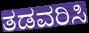
ತಡವರಿಸಿ